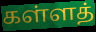
கள்ளத்